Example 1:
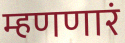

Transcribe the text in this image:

म्हणणारं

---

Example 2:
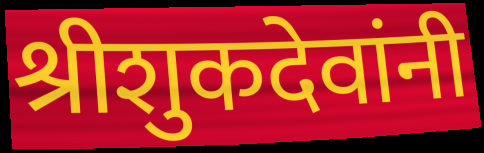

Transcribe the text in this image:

श्रीशुकदेवांनी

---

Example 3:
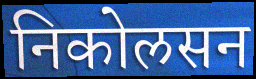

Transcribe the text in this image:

निकोलसन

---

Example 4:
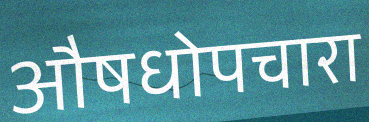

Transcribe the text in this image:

औषधोपचारा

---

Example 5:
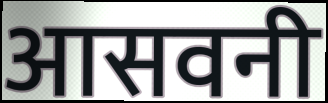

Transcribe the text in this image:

आसवनी